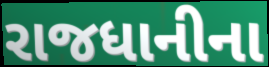
રાજધાનીના